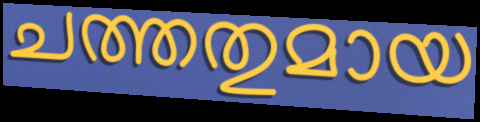
ചത്തതുമായ